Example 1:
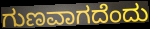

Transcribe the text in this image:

ಗುಣವಾಗದೆಂದು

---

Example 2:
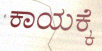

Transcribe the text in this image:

ಕಾಯಕ್ಕೆ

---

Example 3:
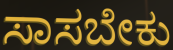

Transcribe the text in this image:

ಸಾಸಬೇಕು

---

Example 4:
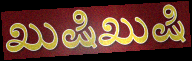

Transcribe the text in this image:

ಖುಷಿಖುಷಿ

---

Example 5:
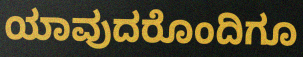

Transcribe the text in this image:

ಯಾವುದರೊಂದಿಗೂ